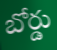
బోర్డు